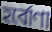
হর্বোণা